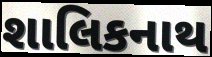
શાલિકનાથ